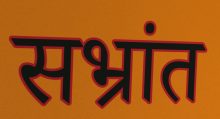
सभ्रांत